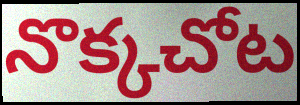
నొక్కచోట